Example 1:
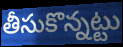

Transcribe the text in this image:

తీసుకొన్నట్టు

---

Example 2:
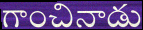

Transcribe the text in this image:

గాంచినాడు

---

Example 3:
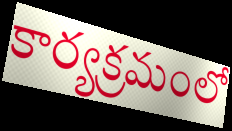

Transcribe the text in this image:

కార్యక్రమంలో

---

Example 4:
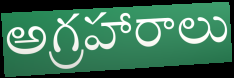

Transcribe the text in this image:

అగ్రహారాలు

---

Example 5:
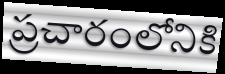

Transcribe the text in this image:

ప్రచారంలోనికి